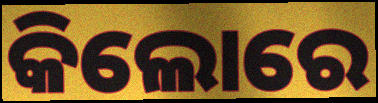
କିଲୋରେ